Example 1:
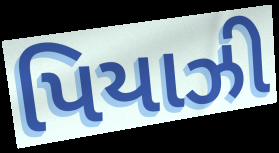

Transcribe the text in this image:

પિયાઝી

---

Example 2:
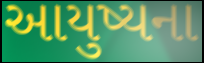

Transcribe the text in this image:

આયુષ્યના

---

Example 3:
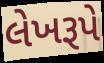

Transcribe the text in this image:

લેખરૂપે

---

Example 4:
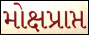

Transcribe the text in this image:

મોક્ષપ્રાપ્ત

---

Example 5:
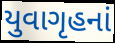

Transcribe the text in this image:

યુવાગૃહનાં